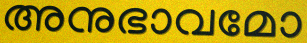
അനുഭാവമോ